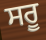
ਸਰੂ